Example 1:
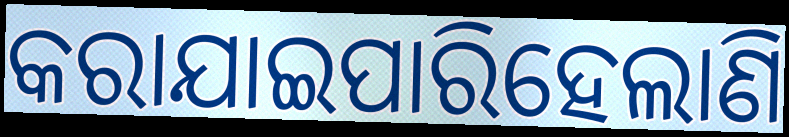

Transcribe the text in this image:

କରାଯାଇପାରିହେଲାଣି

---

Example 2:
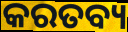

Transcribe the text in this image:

କରତବ୍ୟ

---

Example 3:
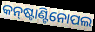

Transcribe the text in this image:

କନ୍‌ଷ୍ଟାଣ୍ଟିନୋପଲ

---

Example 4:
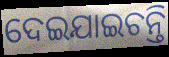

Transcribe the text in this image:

ଦେଇଯାଇଚନ୍ତି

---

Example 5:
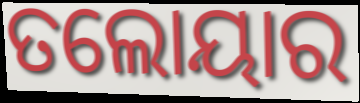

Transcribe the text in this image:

ତଲୋୟାର